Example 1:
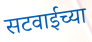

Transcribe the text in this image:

सटवाईच्या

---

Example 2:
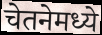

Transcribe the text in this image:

चेतनेमध्ये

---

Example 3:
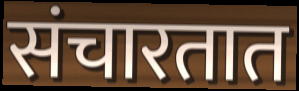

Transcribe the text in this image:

संचारतात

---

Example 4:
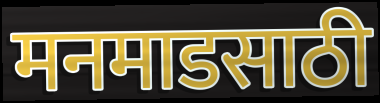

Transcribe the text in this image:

मनमाडसाठी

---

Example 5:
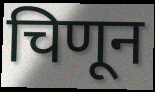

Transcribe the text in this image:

चिणून